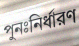
পুনঃনির্ধারণ